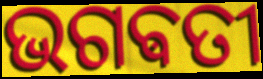
ଭଗଵତୀ